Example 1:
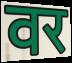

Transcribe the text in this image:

वर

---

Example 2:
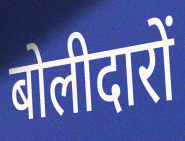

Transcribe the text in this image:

बोलीदारों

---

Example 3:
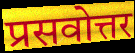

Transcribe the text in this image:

प्रसवोत्तर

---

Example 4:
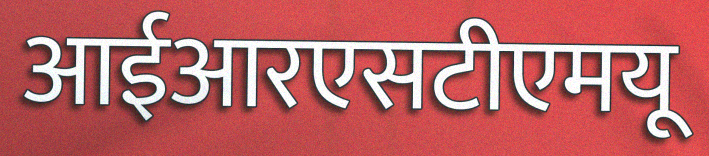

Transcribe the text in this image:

आईआरएसटीएमयू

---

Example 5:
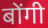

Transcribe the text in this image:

बोंगी